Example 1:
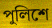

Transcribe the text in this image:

পুলিশে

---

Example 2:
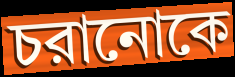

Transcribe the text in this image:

চরানোকে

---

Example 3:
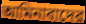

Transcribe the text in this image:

আমিনাবাদের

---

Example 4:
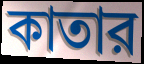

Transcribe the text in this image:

কাতার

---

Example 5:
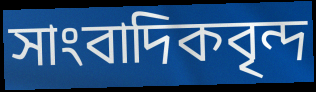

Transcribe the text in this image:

সাংবাদিকবৃন্দ